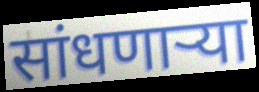
सांधणार्‍या